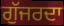
ਗੁੱਜਰਦਾ